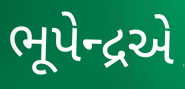
ભૂપેન્દ્રએ